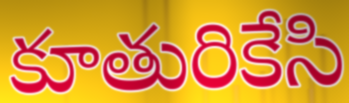
కూతురికేసి